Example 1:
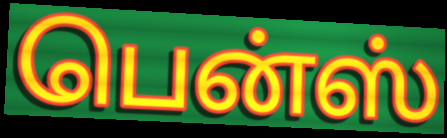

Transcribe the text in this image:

பென்ஸ்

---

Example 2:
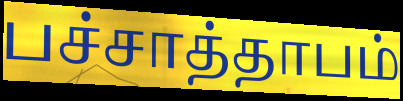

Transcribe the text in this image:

பச்சாத்தாபம்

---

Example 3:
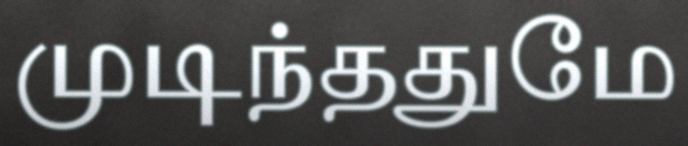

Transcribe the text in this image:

முடிந்ததுமே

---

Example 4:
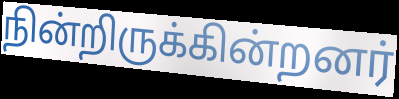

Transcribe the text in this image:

நின்றிருக்கின்றனர்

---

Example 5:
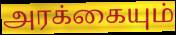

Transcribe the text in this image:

அரக்கையும்